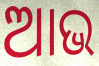
ଆଭ